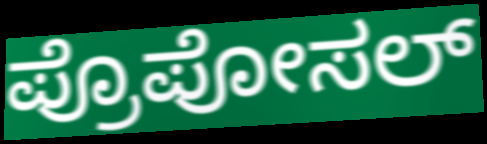
ಪ್ರೊಪೋಸಲ್